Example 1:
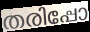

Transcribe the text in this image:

തരിപ്പോ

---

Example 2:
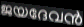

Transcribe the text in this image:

ജയദേവൻ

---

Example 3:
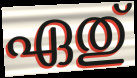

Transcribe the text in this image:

ഏതു്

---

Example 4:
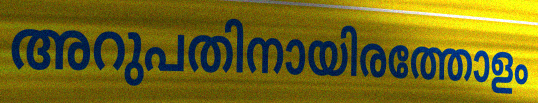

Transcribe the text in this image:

അറുപതിനായിരത്തോളം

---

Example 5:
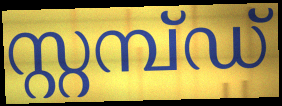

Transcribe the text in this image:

സ്റ്റമ്പ്ഡ്